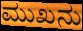
ಮುಖನು